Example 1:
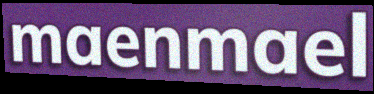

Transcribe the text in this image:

maenmael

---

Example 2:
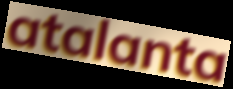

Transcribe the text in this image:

atalanta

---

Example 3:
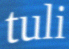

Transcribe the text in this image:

tuli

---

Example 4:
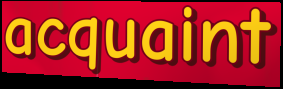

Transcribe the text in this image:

acquaint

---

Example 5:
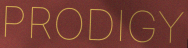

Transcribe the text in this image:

PRODIGY